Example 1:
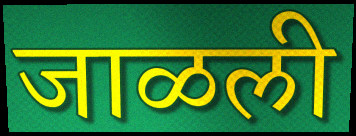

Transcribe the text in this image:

जाळली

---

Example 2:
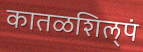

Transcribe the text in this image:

कातळशिल्पं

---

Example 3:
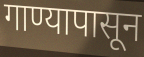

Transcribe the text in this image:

गाण्यापासून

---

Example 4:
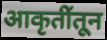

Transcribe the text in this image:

आकृतींतून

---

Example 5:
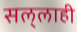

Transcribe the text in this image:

सल्लाही